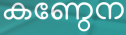
കണ്ഠേന